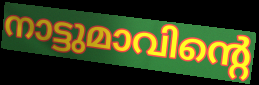
നാട്ടുമാവിന്റെ